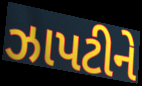
ઝાપટીને